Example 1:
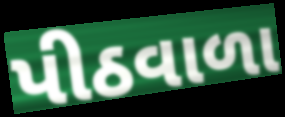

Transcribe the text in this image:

પીઠવાળા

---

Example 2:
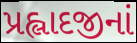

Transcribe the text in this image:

પ્રહ્લાદજીનાં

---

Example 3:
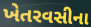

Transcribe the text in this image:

ખેતરવસીના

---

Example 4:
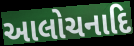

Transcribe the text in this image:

આલોચનાદિ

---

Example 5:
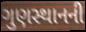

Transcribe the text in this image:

ગુણસ્થાનની